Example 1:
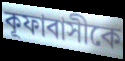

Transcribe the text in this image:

কূফাবাসীকে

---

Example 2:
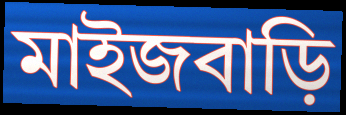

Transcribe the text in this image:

মাইজবাড়ি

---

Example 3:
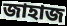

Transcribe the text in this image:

জাহাজ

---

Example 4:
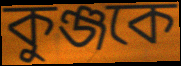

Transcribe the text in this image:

কুঞ্জকে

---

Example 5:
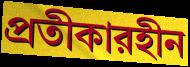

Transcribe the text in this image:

প্রতীকারহীন